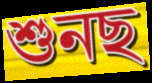
শুনছ